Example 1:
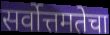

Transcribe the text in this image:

सर्वोत्तमतेचा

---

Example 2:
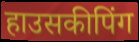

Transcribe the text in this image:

हाउसकीपिंग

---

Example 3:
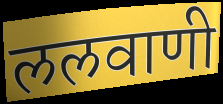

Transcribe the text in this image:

ललवाणी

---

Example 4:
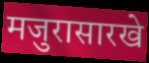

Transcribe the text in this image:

मजुरासारखे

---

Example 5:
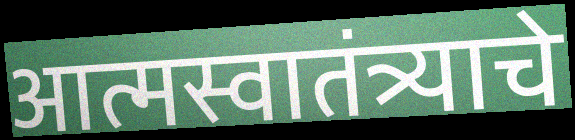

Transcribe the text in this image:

आत्मस्वातंत्र्याचे